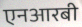
एनआरबी